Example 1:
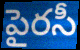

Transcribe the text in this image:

పైరసీ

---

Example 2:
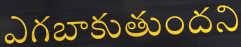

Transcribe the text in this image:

ఎగబాకుతుందని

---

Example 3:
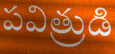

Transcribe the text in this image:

పవిత్రుడి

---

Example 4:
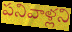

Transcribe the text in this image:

పనివాళ్లని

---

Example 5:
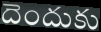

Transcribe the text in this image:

దెందుకు